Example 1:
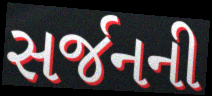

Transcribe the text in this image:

સર્જનની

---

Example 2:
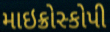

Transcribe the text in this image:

માઇક્રોસ્કોપી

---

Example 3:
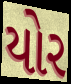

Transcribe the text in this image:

યોર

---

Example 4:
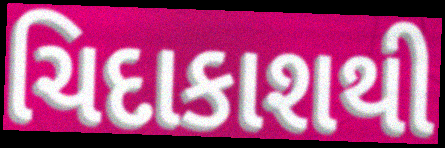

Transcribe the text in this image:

ચિદાકાશથી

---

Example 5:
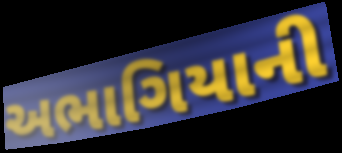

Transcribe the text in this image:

અભાગિયાની